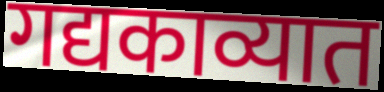
गद्यकाव्यात